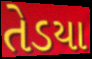
તેડયા